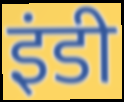
इंडी